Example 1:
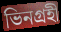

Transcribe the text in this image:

ভিনগ্রহী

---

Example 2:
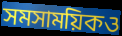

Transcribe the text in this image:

সমসাময়িকও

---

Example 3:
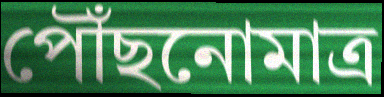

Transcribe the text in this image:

পৌঁছনোমাত্র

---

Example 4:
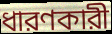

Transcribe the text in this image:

ধারণকারী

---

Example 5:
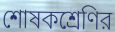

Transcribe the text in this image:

শোষকশ্রেণির